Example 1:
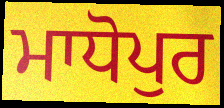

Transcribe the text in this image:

ਮਾਧੋਪੁਰ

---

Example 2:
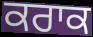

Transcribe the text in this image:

ਕਰਾਕ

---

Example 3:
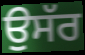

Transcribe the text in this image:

ਉਸੱਰ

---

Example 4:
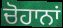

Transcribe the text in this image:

ਚੋਹਾਨਾਂ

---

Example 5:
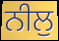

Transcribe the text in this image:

ਨੀਲੁ